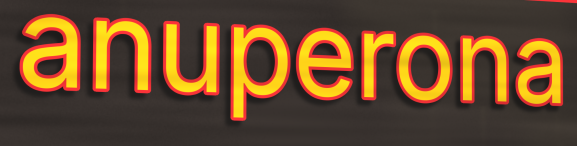
anuperona